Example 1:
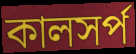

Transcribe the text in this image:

কালসর্প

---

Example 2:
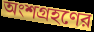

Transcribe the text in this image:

অংশগ্রহণের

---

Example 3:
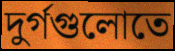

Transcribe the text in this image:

দুর্গগুলোতে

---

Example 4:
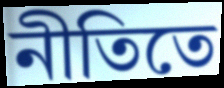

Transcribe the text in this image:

নীতিতে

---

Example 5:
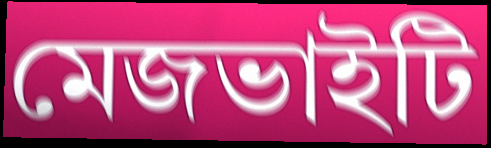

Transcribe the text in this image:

মেজভাইটি